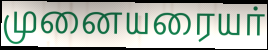
முனையரையர்